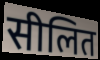
सीलित